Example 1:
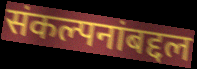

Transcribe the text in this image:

संकल्पनांबद्दल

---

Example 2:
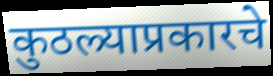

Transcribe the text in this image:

कुठल्याप्रकारचे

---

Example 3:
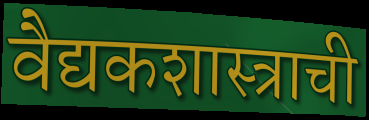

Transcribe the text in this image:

वैद्यकशास्त्राची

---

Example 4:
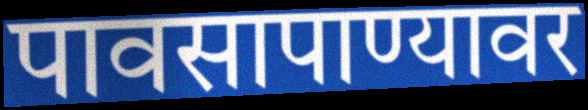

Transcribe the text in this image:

पावसापाण्यावर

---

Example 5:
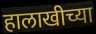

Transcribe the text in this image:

हालाखीच्या